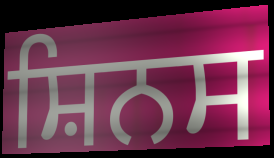
ਸ਼ਿਨਸ